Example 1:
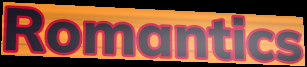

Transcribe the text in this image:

Romantics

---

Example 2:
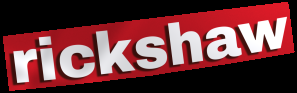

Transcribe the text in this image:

rickshaw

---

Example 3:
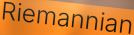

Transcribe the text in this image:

Riemannian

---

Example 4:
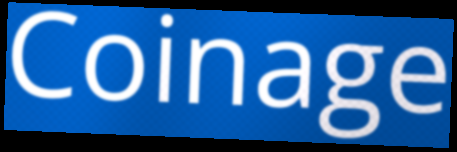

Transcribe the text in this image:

Coinage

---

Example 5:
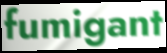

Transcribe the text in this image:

fumigant